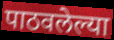
पाठवलेल्या